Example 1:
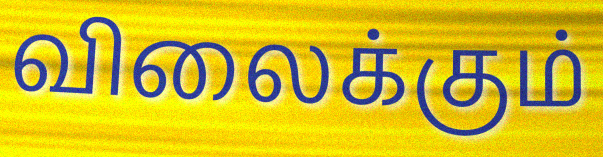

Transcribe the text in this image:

விலைக்கும்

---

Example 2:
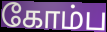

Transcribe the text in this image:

கோம்ப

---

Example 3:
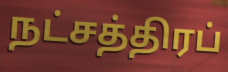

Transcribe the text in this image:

நட்சத்திரப்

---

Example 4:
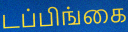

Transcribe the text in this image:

டப்பிங்கை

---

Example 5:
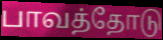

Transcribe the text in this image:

பாவத்தோடு